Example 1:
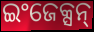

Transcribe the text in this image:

ଇଂଜେକ୍ସନ୍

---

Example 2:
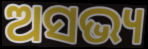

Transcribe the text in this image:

ଅସଭ୍ୟ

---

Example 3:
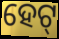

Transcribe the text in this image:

ହେଟ୍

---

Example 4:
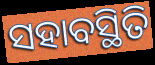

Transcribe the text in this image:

ସହାବସ୍ଥିତି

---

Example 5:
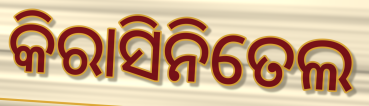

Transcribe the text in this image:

କିରାସିନିତେଲ